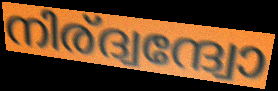
നിര്ദ്വന്ദ്വോ